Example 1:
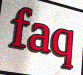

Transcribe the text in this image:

faq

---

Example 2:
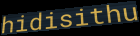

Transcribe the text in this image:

hidisithu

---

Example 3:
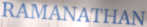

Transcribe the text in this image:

RAMANATHAN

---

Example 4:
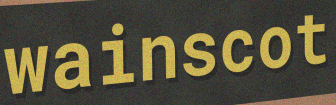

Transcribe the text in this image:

wainscot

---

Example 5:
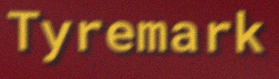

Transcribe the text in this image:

Tyremark